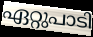
ഏറ്റുപാടി